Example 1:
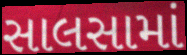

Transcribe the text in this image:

સાલસામાં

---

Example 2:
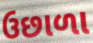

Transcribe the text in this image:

ઉછાળા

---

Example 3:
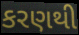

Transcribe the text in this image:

કરણથી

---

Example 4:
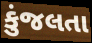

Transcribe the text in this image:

કુંજલતા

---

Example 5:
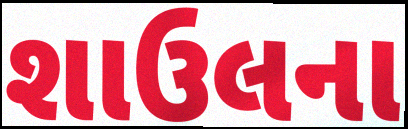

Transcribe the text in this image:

શાઉલના